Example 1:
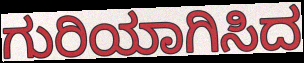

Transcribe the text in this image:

ಗುರಿಯಾಗಿಸಿದ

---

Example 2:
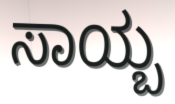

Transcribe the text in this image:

ಸಾಯ್ಬ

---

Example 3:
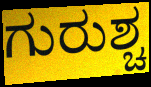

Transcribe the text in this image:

ಗುರುಶ್ಚ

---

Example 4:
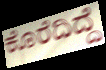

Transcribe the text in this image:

ಕೊರೆದಿದ್ದೆ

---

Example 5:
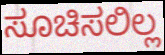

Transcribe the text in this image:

ಸೂಚಿಸಲಿಲ್ಲ